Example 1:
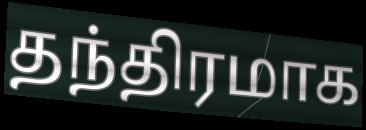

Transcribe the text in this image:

தந்திரமாக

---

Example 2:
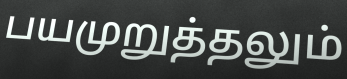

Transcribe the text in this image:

பயமுறுத்தலும்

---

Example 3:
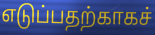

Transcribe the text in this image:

எடுப்பதற்காகச்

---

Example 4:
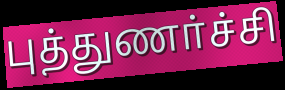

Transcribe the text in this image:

புத்துணர்ச்சி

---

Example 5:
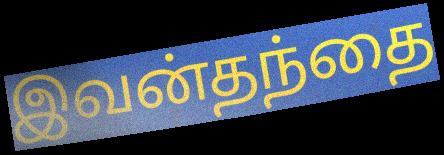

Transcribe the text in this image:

இவன்தந்தை